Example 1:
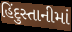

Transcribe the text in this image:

હિંદુસ્તાનીમાં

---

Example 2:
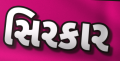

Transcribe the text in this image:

સિરકાર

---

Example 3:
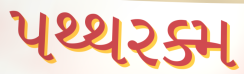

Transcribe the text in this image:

પથ્થરક્મ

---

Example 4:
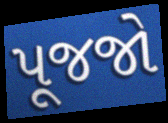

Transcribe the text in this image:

પૂજજો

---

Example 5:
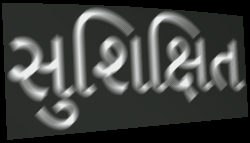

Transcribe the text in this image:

સુશિક્ષિત